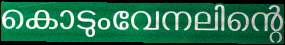
കൊടുംവേനലിന്റെ